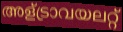
അള്ട്രാവയലറ്റ്